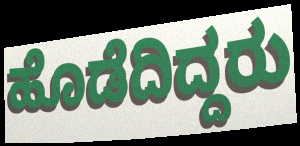
ಹೊಡೆದಿದ್ದರು